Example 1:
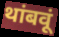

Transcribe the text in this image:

थांबवूं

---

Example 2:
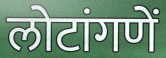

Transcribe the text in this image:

लोटांगणें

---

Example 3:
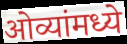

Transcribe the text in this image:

ओव्यांमध्ये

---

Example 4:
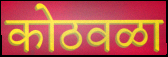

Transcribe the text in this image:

कोठवळा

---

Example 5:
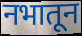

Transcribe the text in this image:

नभातून